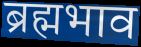
ब्रह्मभाव